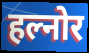
हल्नोर